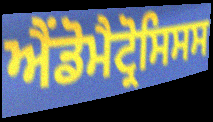
ਐਂਡੋਮੈਟ੍ਰੋਸਿਸਸ